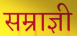
सम्राज्ञी